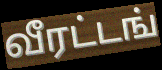
வீரட்டங்